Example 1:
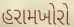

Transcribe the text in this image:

હરામખોરો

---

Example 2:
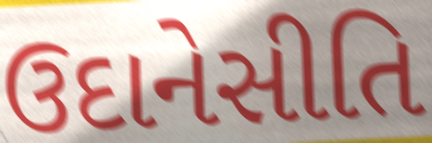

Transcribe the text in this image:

ઉદાનેસીતિ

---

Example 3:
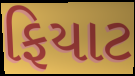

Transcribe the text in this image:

ફિયાટ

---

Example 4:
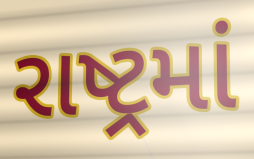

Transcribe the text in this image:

રાષ્ટ્રમાં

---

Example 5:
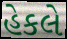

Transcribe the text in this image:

હેકલે